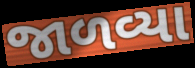
જાળવ્યા